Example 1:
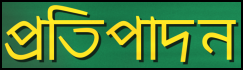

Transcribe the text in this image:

প্ৰতিপাদন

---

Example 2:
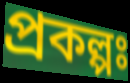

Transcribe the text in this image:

প্ৰকল্পঃ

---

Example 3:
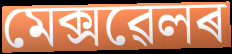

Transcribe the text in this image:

মেক্সৱেলৰ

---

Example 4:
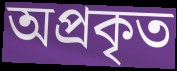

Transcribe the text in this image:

অপ্ৰকৃত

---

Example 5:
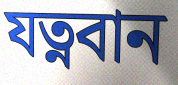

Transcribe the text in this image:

যত্নবান